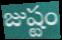
జుష్టం